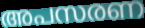
അപസരണ